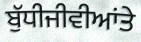
ਬੁੱਧੀਜੀਵੀਆਂਤੇ